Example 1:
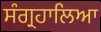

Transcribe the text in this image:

ਸੰਗ੍ਰਹਾਲਿਆ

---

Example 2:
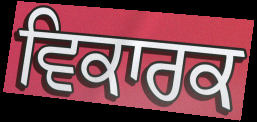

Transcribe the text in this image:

ਵਿਕਾਰਕ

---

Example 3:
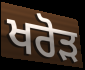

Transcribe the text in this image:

ਖਰੋੜ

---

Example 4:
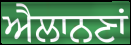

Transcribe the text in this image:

ਐਲਾਨਣਾਂ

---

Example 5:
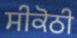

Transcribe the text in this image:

ਸੀਕੋਠੀ